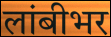
लांबीभर